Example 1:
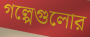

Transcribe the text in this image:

গল্পেগুলোর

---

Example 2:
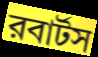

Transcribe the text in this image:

রবার্টস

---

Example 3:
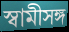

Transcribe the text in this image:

স্বামীসঙ্গ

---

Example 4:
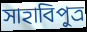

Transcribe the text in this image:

সাহাবিপুত্র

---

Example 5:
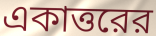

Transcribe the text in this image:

একাত্তরের